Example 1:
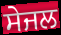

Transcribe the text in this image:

ਸੇਜਲ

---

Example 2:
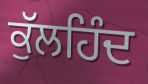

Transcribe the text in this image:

ਕੁੱਲਹਿੰਦ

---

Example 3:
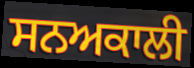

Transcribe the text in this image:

ਸਨਅਕਾਲੀ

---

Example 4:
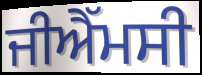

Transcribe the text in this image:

ਜੀਐੱਮਸੀ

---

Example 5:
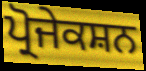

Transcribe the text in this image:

ਪ੍ਰੋਜੇਕਸ਼ਨ